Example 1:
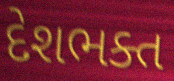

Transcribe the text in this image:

દેશભક્ત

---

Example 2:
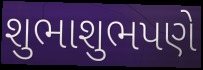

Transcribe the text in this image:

શુભાશુભપણે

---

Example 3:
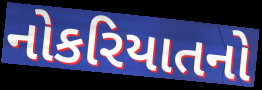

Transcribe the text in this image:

નોકરિયાતનો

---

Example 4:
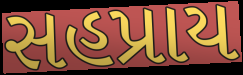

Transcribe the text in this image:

સહપ્રાય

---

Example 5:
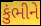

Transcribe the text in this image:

કુંભીને